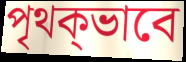
পৃথক্ভাবে